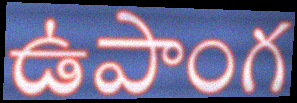
ఉపాంగ